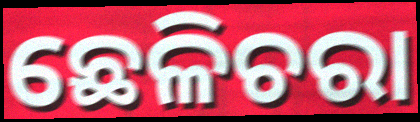
ଛେଳିଚରା